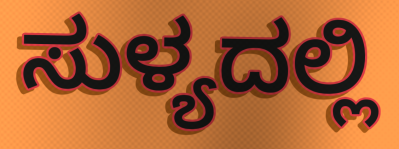
ಸುಳ್ಯದಲ್ಲಿ